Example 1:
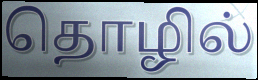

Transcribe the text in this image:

தொழில்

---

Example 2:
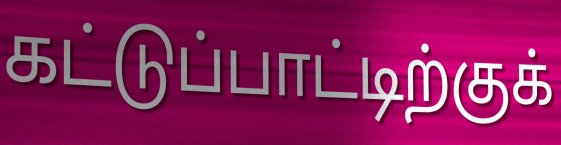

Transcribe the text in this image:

கட்டுப்பாட்டிற்குக்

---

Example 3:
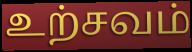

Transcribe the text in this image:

உற்சவம்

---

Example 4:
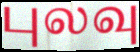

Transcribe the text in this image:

புலவு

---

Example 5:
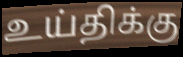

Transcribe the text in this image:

உய்திக்கு